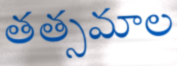
తత్సమాల